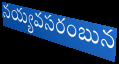
నయ్యవసరంబున